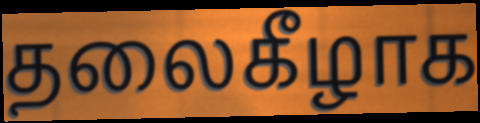
தலைகீழாக